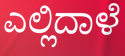
ಎಲ್ಲಿದಾಳೆ